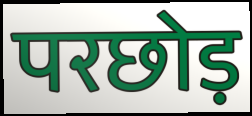
परछोड़